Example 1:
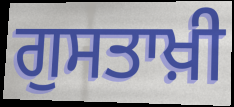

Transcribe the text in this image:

ਗੁਸਤਾਖ਼ੀ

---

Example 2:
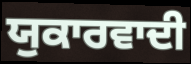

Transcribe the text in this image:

ਯੁਕਾਰਵਾਦੀ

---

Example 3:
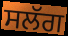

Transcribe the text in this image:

ਸਲੱਗ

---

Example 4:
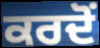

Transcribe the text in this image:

ਕਰਦੋਂ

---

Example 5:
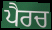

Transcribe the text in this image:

ਪੈਰਚ